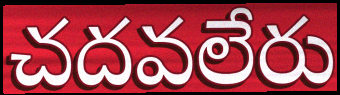
చదవలేరు